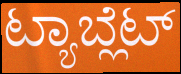
ಟ್ಯಾಬ್ಲೆಟ್